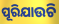
ପୂରିଯାଉଚି